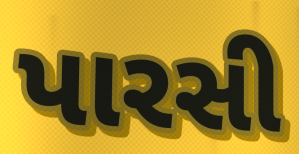
પારસી